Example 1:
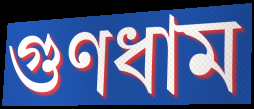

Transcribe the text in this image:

গুণধাম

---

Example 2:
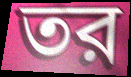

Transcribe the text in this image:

তর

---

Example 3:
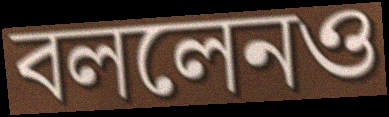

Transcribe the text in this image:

বললেনও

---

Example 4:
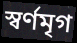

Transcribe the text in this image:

স্বর্ণমৃগ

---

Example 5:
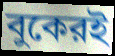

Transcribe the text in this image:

বুকেরই